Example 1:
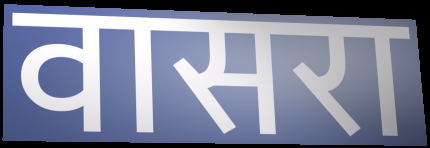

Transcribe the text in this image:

वासरा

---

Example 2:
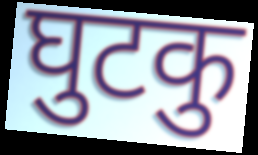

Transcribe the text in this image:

घुटकु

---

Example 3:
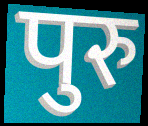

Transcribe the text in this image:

पुरु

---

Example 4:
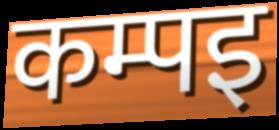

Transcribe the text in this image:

कम्पइ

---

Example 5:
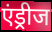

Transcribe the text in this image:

एंड्रीज